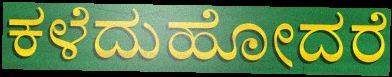
ಕಳೆದುಹೋದರೆ